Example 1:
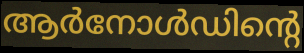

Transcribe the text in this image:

ആർനോൾഡിന്റെ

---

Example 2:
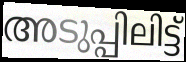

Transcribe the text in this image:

അടുപ്പിലിട്ട്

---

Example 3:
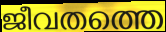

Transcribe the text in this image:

ജീവതത്തെ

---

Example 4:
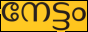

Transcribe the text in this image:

നേട്ടം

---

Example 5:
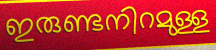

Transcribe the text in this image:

ഇരുണ്ടനിറമുള്ള